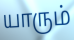
யாரும்